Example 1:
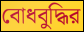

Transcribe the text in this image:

বোধবুদ্ধির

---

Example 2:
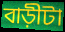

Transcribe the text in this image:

বাড়ীটা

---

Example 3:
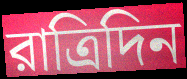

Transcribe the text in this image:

রাত্রিদিন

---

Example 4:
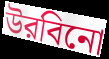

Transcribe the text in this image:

উরবিনো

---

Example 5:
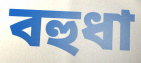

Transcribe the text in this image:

বহুধা